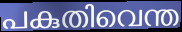
പകുതിവെന്ത